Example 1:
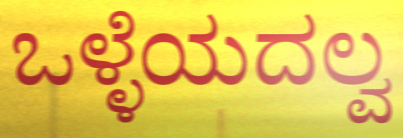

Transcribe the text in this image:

ಒಳ್ಳೆಯದಲ್ವ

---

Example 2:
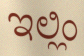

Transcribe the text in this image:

ಇಲ್ಲಿಂ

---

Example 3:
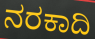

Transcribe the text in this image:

ನರಕಾದಿ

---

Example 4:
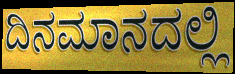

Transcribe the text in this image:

ದಿನಮಾನದಲ್ಲಿ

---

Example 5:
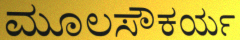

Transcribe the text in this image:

ಮೂಲಸೌಕರ್ಯ